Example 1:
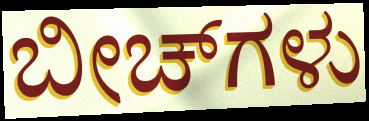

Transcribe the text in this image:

ಬೀಚ್‌ಗಳು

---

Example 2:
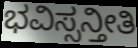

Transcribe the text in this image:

ಭವಿಸ್ಸನ್ತೀತಿ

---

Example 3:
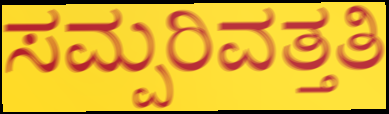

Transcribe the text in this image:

ಸಮ್ಪರಿವತ್ತತಿ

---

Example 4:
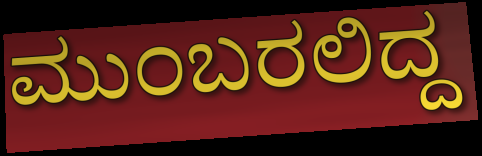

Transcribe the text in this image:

ಮುಂಬರಲಿದ್ದ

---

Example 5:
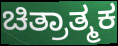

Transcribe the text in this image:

ಚಿತ್ರಾತ್ಮಕ